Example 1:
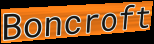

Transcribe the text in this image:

Boncroft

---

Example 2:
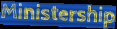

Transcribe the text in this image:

Ministership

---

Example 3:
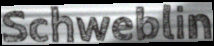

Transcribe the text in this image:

Schweblin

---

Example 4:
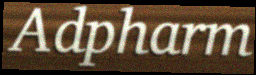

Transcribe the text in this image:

Adpharm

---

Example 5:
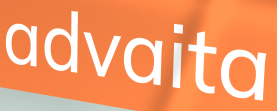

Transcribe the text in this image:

advaita